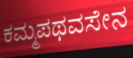
ಕಮ್ಮಪಥವಸೇನ